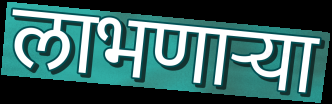
लाभणाऱ्या